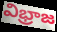
విభ్రాజ